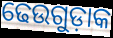
ଢେଉଗୁଡ଼ାକ